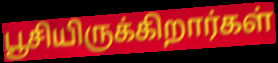
பூசியிருக்கிறார்கள்